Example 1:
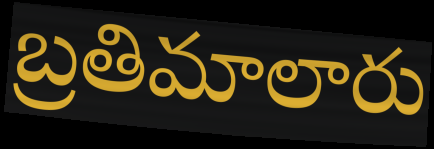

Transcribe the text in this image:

బ్రతిమాలారు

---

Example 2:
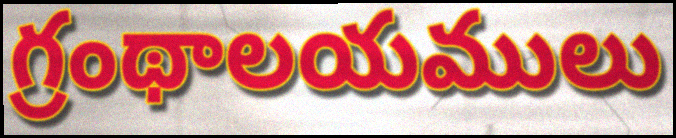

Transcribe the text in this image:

గ్రంథాలయములు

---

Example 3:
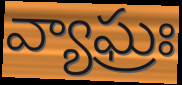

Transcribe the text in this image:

వ్యాఘ్రః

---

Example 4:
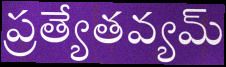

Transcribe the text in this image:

ప్రత్యేతవ్యమ్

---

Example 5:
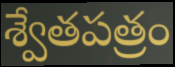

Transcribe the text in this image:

శ్వేతపత్రం